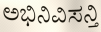
ಅಭಿನಿವಿಸನ್ತಿ